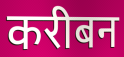
करीबन